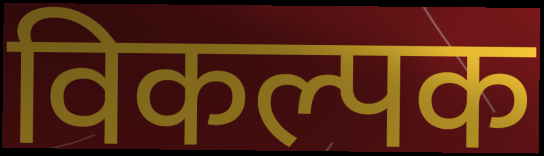
विकल्पक